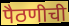
पैठणीची